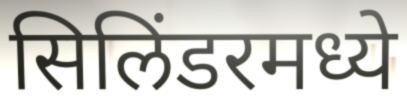
सिलिंडरमध्ये